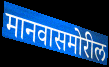
मानवासमोरील